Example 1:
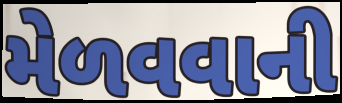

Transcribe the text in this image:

મેળવવાની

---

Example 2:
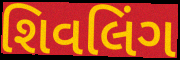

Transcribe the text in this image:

શિવલિંગ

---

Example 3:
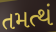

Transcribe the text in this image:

તમત્થં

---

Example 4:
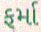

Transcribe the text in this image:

ફર્મા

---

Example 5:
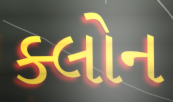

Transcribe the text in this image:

ક્લોન